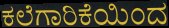
ಕಲೆಗಾರಿಕೆಯಿಂದ